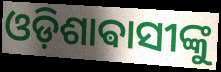
ଓଡ଼ିଶାଵାସୀଙ୍କୁ